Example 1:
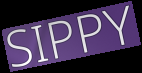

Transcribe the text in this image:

SIPPY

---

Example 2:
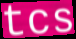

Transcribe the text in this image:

tcs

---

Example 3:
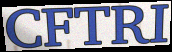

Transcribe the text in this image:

CFTRI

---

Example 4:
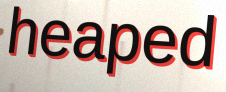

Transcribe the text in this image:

heaped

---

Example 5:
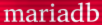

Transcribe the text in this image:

mariadb